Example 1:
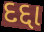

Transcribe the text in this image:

દદ્દા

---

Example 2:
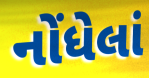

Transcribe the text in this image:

નોંધેલાં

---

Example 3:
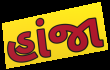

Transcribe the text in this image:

હાંજા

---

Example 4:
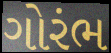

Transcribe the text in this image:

ગોરંભ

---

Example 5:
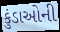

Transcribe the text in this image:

કુંડાઓની